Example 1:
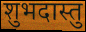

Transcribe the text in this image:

शुभदास्तु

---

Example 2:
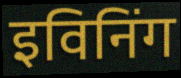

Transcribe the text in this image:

इविनिंग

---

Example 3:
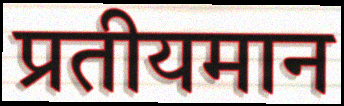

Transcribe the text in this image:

प्रतीयमान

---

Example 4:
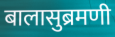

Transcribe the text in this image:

बालासुब्रमणी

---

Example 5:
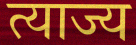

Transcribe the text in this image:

त्याज्य